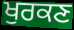
ਖੁਰਕਣ